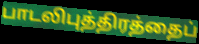
பாடலிபுத்திரத்தைப்